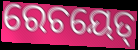
ରେଚୟେତ୍